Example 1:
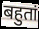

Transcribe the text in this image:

बहुतां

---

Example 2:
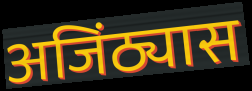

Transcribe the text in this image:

अजिंठ्यास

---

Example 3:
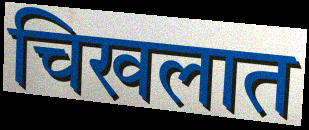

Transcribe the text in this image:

चिखलात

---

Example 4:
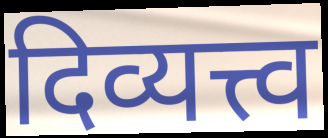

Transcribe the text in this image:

दिव्यत्त्व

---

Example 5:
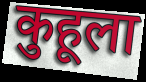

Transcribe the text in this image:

कुहूला